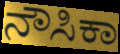
ನೌಸಿಕಾ